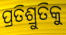
ପ୍ରତିଶ୍ରୁତିକୁ